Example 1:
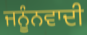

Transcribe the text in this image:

ਜਨੂੰਨਵਾਦੀ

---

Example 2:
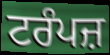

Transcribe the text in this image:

ਟਰੰਪਜ਼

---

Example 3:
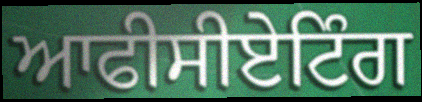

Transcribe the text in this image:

ਆਫੀਸੀਏਟਿੰਗ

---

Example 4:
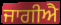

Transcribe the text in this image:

ਜਾਗੀਐ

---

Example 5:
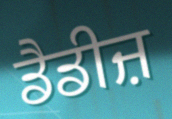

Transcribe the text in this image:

ਡੈਡੀਜ਼